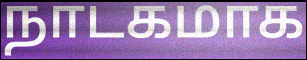
நாடகமாக